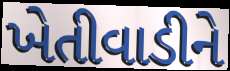
ખેતીવાડીને